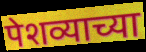
पेशव्याच्या